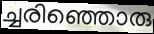
ച്ചരിഞ്ഞൊരു